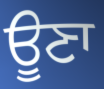
ਊਣਾ